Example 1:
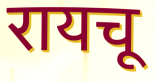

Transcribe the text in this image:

रायचू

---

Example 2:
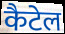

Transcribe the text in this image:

कैटेल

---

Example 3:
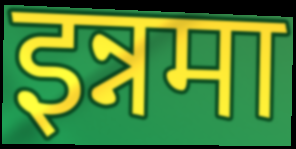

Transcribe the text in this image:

इन्नमा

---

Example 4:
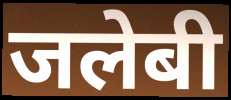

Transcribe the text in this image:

जलेबी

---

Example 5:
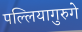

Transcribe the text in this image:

पल्लियागुरुगे